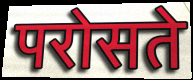
परोसते